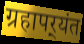
ग्रहापर्यंत